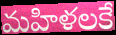
మహిళలకే